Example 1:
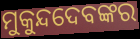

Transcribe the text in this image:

ମୁକୁନ୍ଦଦେବଙ୍କର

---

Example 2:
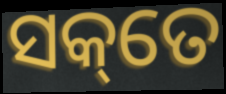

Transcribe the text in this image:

ସକ୍‌ତେ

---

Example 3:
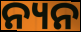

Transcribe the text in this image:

ନ୍ୟନ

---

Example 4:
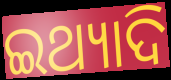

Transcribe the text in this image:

ଇଥ୍ୟାଦି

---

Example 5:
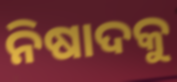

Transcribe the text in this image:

ନିଷାଦକୁ